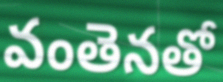
వంతెనతో